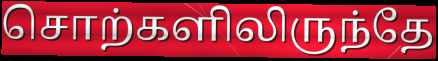
சொற்களிலிருந்தே